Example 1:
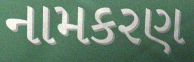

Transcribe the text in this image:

નામકરણ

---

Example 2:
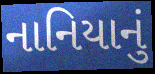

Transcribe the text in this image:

નાનિયાનું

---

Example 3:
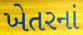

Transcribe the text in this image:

ખેતરનાં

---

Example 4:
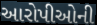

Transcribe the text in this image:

આરોપીઓની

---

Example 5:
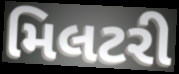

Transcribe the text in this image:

મિલટરી